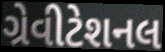
ગ્રેવીટેશનલ